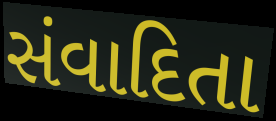
સંવાદિતા